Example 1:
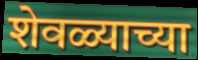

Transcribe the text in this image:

शेवळ्याच्या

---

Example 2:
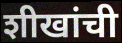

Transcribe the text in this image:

शीखांची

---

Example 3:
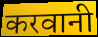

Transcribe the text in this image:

करवानी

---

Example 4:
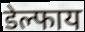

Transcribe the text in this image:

डेल्फाय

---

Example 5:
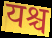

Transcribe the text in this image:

यश्च